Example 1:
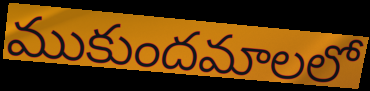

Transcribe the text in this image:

ముకుందమాలలో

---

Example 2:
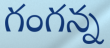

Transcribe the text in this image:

గంగన్న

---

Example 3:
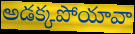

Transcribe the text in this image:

అడక్కపోయావా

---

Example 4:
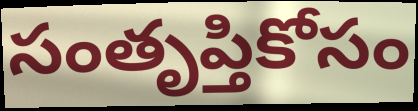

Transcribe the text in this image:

సంతృప్తికోసం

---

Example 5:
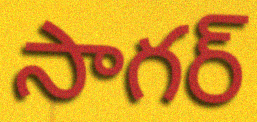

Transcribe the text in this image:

సాగర్